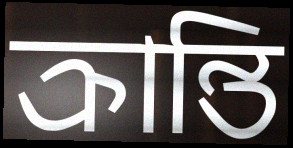
ক্রান্তি